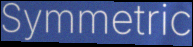
Symmetric